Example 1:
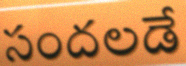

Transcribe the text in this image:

సందలడే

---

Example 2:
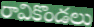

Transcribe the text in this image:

రావికొండలు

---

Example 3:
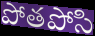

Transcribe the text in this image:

పోతపోసి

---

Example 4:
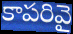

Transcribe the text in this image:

కాపరివై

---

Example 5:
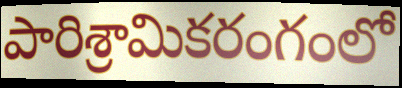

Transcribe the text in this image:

పారిశ్రామికరంగంలో